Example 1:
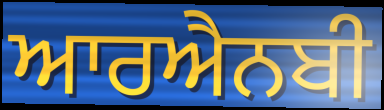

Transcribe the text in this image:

ਆਰਐਨਬੀ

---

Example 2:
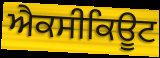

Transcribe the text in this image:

ਐਕਸੀਕਿਊਟ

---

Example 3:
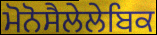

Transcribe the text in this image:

ਮੋਨੋਸੈਲੇਲੇਬਿਕ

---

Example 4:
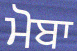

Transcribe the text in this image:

ਮੋਬਾ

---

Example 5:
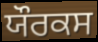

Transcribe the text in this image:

ਯੌਰਕਸ